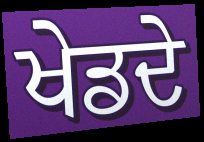
ਖੇਡਦੇ